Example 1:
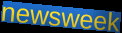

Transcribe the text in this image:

newsweek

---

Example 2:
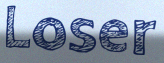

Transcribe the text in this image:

Loser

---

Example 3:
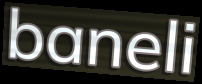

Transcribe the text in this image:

baneli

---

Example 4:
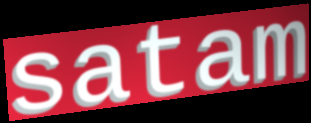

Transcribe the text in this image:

satam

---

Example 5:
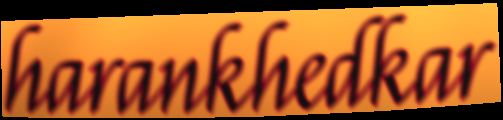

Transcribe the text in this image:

harankhedkar